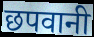
छपवानी